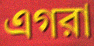
এগরা